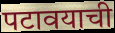
पटावयाची